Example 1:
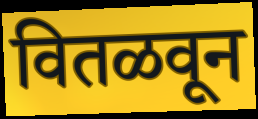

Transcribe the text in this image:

वितळवून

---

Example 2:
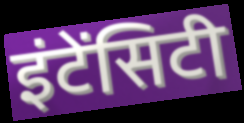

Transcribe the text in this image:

इंटेंसिटी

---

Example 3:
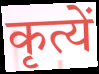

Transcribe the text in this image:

कृत्यें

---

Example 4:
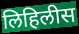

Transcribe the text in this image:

लिहिलीस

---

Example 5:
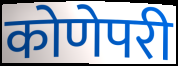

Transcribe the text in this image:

कोणेपरी